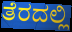
ತೆರದಲ್ಲಿ